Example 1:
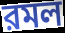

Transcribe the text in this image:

রমল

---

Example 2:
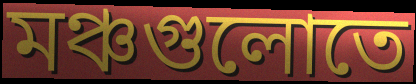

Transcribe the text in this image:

মঞ্চগুলোতে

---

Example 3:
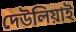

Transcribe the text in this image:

দেউলিয়াই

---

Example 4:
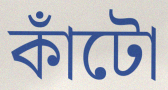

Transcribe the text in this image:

কাঁটো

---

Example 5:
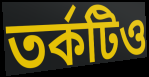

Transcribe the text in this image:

তর্কটিও